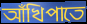
আঁখিপাতে